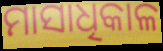
ମାସାଧିକାଳ